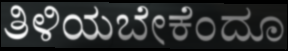
ತಿಳಿಯಬೇಕೆಂದೂ